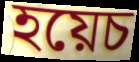
হয়েচ